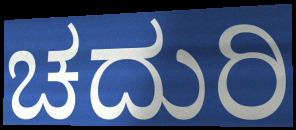
ಚದುರಿ